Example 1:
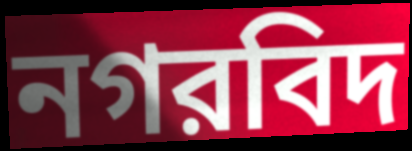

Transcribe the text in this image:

নগরবিদ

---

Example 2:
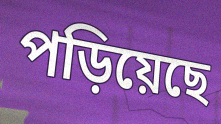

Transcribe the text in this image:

পড়িয়েছে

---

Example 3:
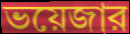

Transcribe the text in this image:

ভয়েজার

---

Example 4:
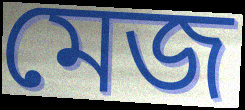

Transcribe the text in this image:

মেজ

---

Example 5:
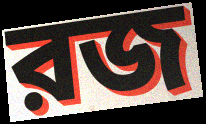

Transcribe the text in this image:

রজ